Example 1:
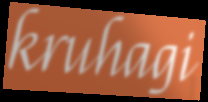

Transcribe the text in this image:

kruhagi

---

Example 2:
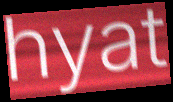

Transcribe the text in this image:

hyat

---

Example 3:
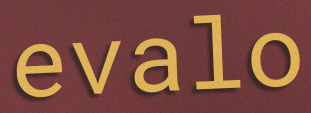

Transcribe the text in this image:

evalo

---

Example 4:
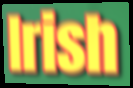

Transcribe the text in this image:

Irish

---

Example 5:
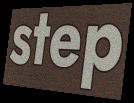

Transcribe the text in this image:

step